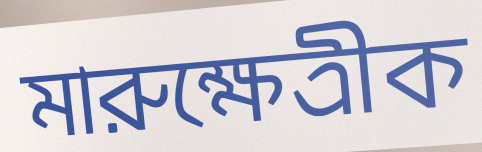
মাৰুক্ষেত্ৰীক